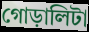
গোড়ালিটা